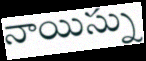
నాయిస్ను